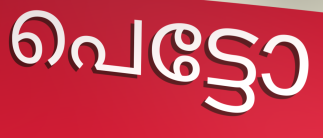
പെട്ടോ